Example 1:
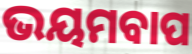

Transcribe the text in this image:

ଭୟମବାପ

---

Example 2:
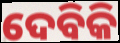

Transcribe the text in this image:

ଦେବିକି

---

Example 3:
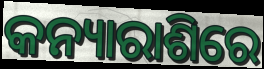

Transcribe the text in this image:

କନ୍ୟାରାଶିରେ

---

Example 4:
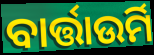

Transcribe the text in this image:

ବାର୍ତ୍ତାଉର୍ମି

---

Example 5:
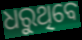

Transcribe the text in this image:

ଧରୁଥିବେ